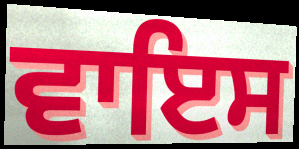
ਵਾਇਸ